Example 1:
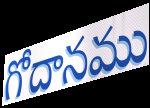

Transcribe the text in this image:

గోదానము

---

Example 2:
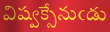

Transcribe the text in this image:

విష్వక్సేనుఁడు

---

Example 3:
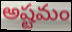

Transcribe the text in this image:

అష్టమం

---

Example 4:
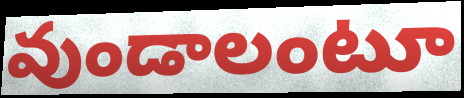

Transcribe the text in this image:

వుండాలంటూ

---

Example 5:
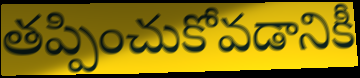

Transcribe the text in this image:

తప్పించుకోవడానికీ